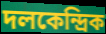
দলকেন্দ্রিক